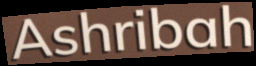
Ashribah